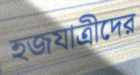
হজযাত্রীদের